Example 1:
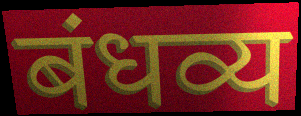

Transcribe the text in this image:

बंधव्य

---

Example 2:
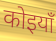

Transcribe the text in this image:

कोइयाँ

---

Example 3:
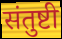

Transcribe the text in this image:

संतुष्टी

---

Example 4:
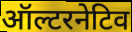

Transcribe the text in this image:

ऑल्टरनेटिव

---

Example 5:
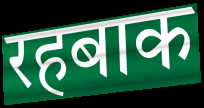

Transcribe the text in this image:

रहबाक